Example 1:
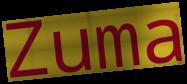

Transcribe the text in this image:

Zuma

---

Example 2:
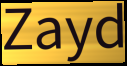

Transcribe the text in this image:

Zayd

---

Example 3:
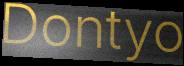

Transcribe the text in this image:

Dontyo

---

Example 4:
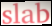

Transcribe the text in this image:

slab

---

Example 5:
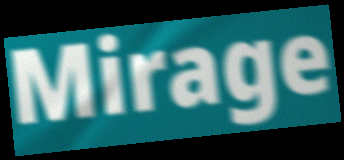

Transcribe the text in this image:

Mirage